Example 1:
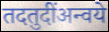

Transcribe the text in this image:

तदतुदींअन्वये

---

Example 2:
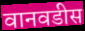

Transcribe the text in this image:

वानवडीस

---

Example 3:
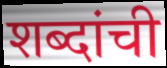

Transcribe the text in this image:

शब्दांची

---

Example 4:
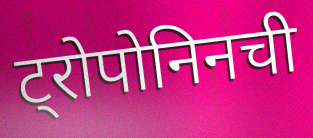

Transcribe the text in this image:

ट्रोपोनिनची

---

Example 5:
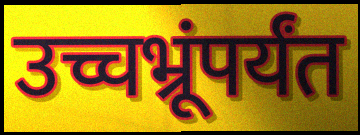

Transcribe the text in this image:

उच्चभ्रूंपर्यंत